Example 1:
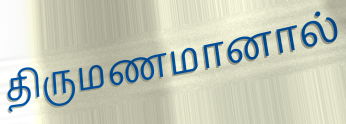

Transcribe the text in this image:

திருமணமானால்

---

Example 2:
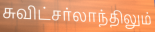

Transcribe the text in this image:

சுவிட்சர்லாந்திலும்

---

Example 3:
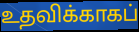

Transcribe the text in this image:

உதவிக்காகப்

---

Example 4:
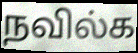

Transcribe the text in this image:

நவில்க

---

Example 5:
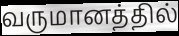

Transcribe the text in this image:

வருமானத்தில்